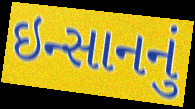
ઇન્સાનનું